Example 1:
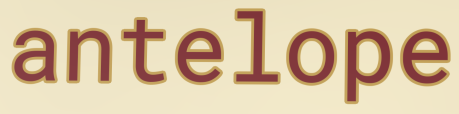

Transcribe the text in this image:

antelope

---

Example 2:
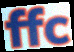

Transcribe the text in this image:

ffc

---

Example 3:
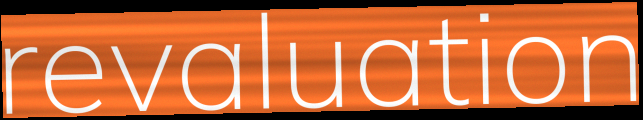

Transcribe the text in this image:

revaluation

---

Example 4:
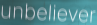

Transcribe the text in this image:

unbeliever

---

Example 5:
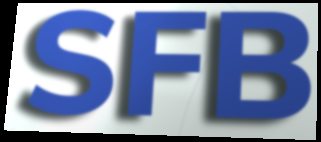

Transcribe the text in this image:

SFB